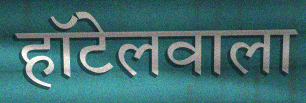
हॉटेलवाला